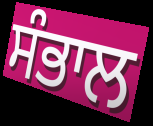
ਸੰਭਾਲ